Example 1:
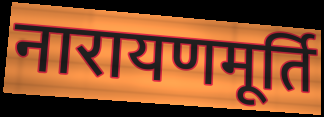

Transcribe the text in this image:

नारायणमूर्ति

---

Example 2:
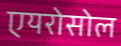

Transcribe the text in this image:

एयरोसोल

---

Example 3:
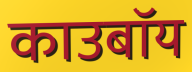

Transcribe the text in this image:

काउबॉय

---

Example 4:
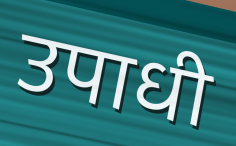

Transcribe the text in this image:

उपाधी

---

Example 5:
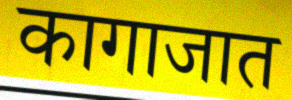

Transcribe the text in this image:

कागाजात